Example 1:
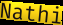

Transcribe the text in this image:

Nathi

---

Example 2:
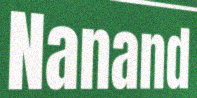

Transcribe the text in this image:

Nanand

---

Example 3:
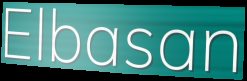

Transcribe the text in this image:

Elbasan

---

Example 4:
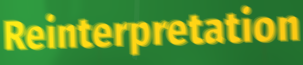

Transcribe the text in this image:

Reinterpretation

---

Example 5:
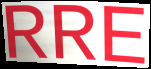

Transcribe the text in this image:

RRE